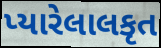
પ્યારેલાલકૃત